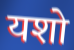
यशो